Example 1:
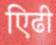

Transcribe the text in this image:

एिढी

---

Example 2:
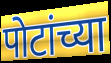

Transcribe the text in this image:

पोटांच्या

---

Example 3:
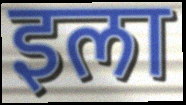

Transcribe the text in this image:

इला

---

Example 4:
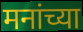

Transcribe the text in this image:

मनांच्या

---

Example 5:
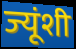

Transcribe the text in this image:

ज्यूंशी